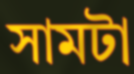
সামটা